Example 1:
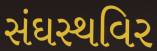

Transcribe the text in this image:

સંઘસ્થવિર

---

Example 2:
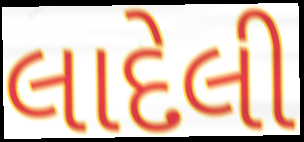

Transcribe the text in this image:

લાદેલી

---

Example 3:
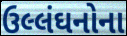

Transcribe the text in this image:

ઉલ્લંઘનોના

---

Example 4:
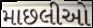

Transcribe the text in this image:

માછલીઓ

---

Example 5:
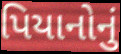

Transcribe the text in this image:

પિયાનોનું